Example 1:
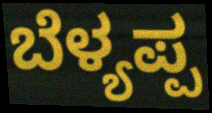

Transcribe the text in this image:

ಬೆಳ್ಯಪ್ಪ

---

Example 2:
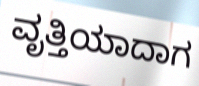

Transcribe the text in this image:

ವೃತ್ತಿಯಾದಾಗ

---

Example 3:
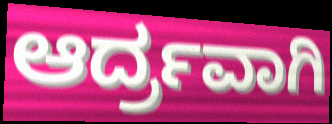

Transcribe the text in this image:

ಆರ್ದ್ರವಾಗಿ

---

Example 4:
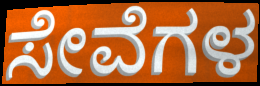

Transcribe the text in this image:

ಸೇವೆಗಳ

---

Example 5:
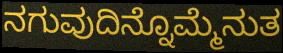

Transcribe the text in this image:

ನಗುವುದಿನ್ನೊಮ್ಮೆನುತ